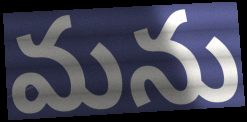
మను